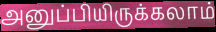
அனுப்பியிருக்கலாம்